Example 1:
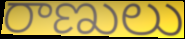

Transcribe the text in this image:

రాణులు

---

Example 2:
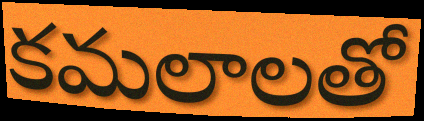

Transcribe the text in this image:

కమలాలతో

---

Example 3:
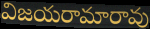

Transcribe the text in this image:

విజయరామారావు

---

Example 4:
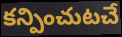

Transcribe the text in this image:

కన్పించుటచే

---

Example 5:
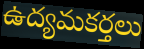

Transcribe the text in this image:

ఉద్యమకర్తలు